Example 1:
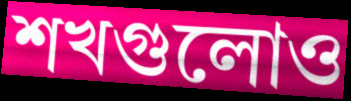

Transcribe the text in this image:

শখগুলোও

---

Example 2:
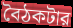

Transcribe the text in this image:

বৈঠকটার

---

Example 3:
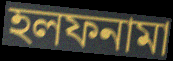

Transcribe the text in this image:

হলফনামা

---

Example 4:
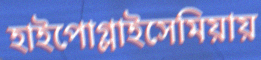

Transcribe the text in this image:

হাইপোগ্লাইসেমিয়ায়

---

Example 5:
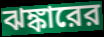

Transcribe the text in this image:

ঝঙ্কারের